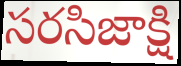
సరసిజాక్షి